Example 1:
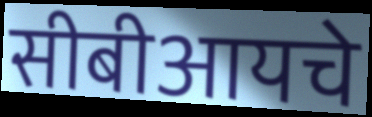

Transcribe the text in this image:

सीबीआयचे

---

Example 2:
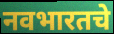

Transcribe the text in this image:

नवभारतचे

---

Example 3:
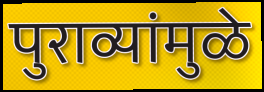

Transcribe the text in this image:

पुराव्यांमुळे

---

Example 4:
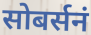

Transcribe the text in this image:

सोबर्सनं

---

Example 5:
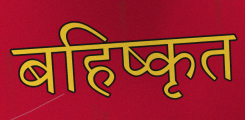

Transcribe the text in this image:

बहिष्कृत